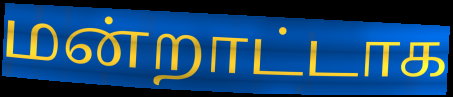
மன்றாட்டாக